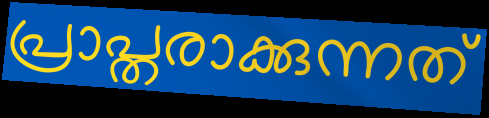
പ്രാപ്തരാക്കുന്നത്